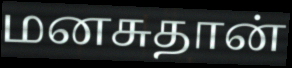
மனசுதான்